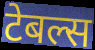
टेबल्स